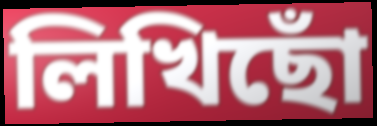
লিখিছোঁ